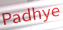
Padhye